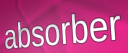
absorber